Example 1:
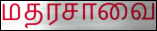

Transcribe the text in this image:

மதரசாவை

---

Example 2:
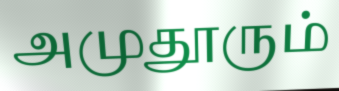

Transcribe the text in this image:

அமுதூரும்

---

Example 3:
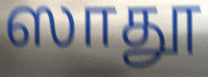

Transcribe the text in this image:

ஸாதூ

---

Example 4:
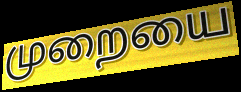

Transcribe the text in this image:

முறையை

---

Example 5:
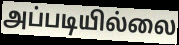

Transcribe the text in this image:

அப்படியில்லை